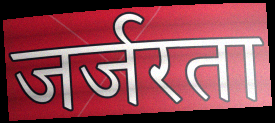
जर्जरता